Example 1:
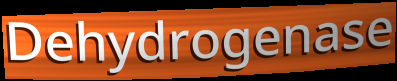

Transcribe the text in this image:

Dehydrogenase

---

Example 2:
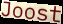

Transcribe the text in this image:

Joost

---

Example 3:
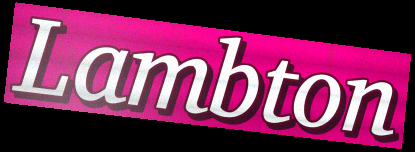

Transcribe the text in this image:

Lambton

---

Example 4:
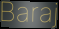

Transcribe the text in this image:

Baraj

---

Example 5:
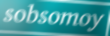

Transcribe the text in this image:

sobsomoy